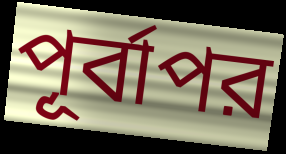
পূর্বাপর